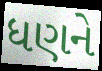
ધણને